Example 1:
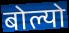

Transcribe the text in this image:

बोल्यो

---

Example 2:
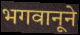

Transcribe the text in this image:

भगवानूने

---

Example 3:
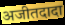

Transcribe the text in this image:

अजीतदादा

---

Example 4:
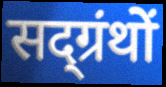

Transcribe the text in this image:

सद्ग्रंथों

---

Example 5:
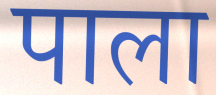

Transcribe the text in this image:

पाला